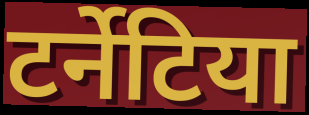
टर्नेटिया